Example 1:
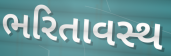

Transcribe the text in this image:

ભરિતાવસ્થ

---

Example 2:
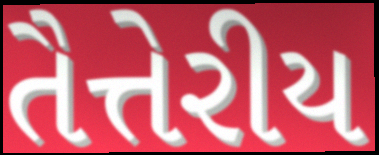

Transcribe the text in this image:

તૈત્તેરીય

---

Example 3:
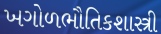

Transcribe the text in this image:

ખગોળભૌતિકશાસ્ત્રી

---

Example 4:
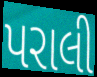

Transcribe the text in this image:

પરાલી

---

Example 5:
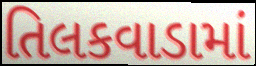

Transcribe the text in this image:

તિલકવાડામાં